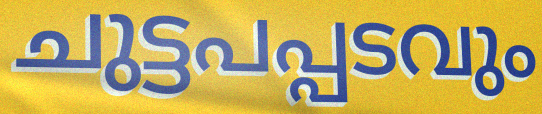
ചുട്ടപപ്പടവും